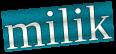
milik